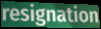
resignation